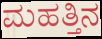
ಮಹತ್ತಿನ